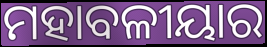
ମହାବଳୀୟାର